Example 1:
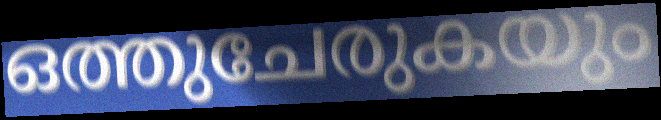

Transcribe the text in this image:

ഒത്തുചേരുകയും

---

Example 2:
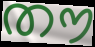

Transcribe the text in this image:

തൗ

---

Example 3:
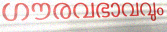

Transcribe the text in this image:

ഗൗരവഭാവവും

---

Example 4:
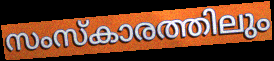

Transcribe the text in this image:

സംസ്കാരത്തിലും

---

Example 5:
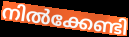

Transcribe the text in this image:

നിൽക്കേണ്ടി